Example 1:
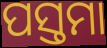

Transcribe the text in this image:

ପସ୍ତମା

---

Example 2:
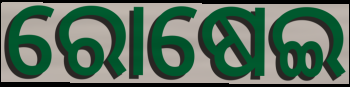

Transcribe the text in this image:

ରୋଷେଇ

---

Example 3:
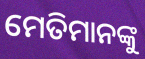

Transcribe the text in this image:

ମେତିମାନଙ୍କୁ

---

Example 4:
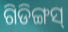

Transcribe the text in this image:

ଗିଡିଙ୍ଗସ୍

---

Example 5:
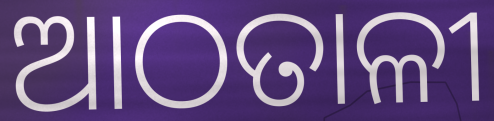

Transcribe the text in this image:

ଆଠତାଳୀ